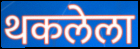
थकलेला